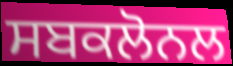
ਸਬਕਲੋਨਲ